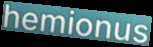
hemionus